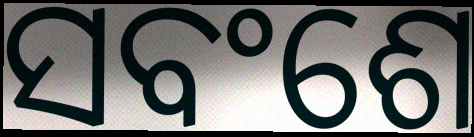
ସବଂଶେ